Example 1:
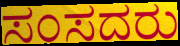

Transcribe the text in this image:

ಸಂಸದರು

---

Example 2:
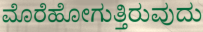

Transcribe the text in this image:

ಮೊರೆಹೋಗುತ್ತಿರುವುದು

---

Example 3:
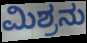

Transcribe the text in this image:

ಮಿಶ್ರನು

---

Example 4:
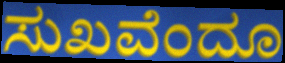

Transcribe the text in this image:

ಸುಖವೆಂದೂ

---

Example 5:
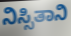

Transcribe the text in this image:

ನಿಸ್ಸಿತಾನಿ